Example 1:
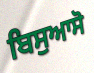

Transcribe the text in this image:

ਬਿਸੁਆਸੋ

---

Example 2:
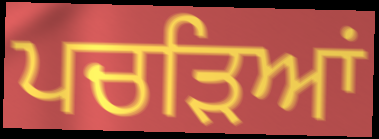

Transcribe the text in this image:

ਪਚੜਿਆਂ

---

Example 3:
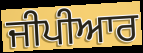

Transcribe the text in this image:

ਜੀਪੀਆਰ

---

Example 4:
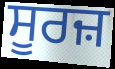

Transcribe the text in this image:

ਸੂਰਜ਼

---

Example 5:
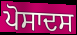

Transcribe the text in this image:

ਪੋਸਾਦਸ